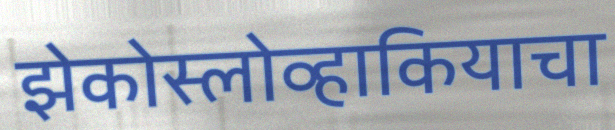
झेकोस्लोव्हाकियाचा